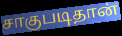
சாகுபடிதான்